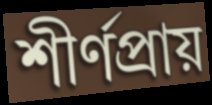
শীর্ণপ্রায়